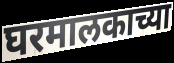
घरमालकाच्या